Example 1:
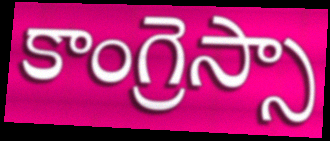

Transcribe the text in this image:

కాంగ్రెస్సా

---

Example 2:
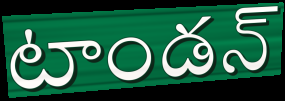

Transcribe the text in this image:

టాండన్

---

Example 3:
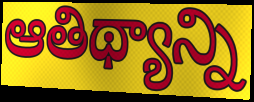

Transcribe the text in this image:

ఆతిథ్యాన్ని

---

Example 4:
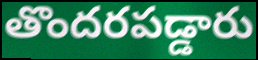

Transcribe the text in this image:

తొందరపడ్డారు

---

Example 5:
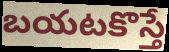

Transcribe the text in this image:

బయటకొస్తే